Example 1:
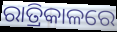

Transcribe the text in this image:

ରାତ୍ରିକାଳରେ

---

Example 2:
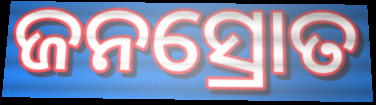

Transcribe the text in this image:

ଜନସ୍ରୋତ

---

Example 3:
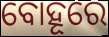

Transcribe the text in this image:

ବୋହୂରେ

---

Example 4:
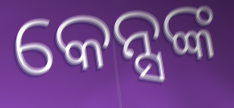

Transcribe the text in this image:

କେନ୍ସଙ୍କ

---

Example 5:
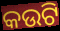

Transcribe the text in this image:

କଉଟି